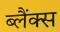
ब्लैंक्स